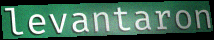
levantaron